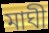
মাঘী